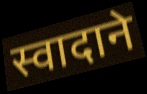
स्वादाने